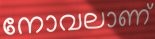
നോവലാണ്